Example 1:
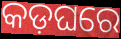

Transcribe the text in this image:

କଡ଼ଘରେ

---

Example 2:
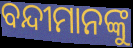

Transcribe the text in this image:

ବନ୍ଦୀମାନଙ୍କୁ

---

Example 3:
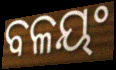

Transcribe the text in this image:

ବଳୟଂ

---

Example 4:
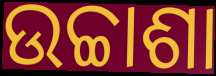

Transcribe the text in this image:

ଉଚ୍ଚାଶା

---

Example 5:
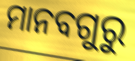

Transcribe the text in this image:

ମାନବଗୁରୁ